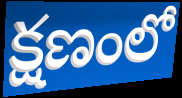
క్షణంలో